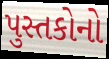
પુસ્તકોનો